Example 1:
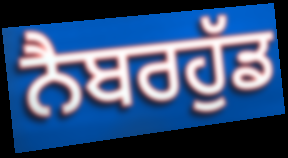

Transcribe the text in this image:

ਨੈਬਰਹੁੱਡ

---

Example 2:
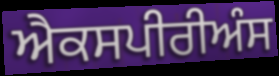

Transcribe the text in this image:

ਐਕਸਪੀਰੀਅੰਸ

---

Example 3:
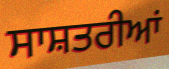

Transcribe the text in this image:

ਸਾਸ਼ਤਰੀਆਂ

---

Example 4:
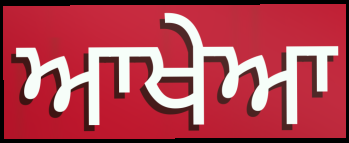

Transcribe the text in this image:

ਆਖੇਆ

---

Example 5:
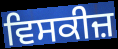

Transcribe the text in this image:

ਵਿਸਕੀਜ਼